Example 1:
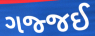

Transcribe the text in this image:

ગજ્જઈ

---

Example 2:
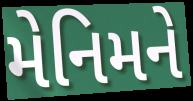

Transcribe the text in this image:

મેનિમને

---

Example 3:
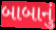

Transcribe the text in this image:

બાબાનું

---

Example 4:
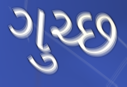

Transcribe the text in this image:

ગુચ્છ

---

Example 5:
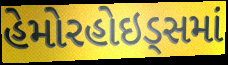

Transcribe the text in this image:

હેમોરહોઇડ્સમાં